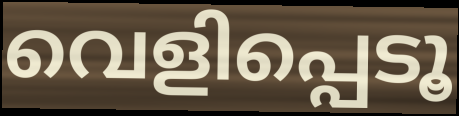
വെളിപ്പെടൂ